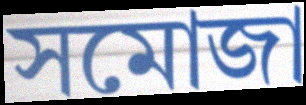
সমোজা